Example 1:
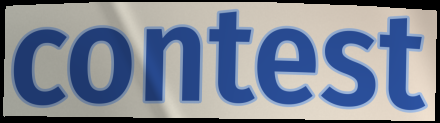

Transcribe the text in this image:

contest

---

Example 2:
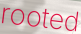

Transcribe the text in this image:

rooted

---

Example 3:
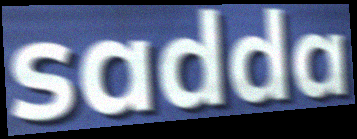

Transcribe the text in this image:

sadda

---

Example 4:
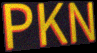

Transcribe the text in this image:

PKN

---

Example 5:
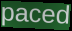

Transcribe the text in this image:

paced